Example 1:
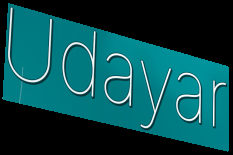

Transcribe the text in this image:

Udayar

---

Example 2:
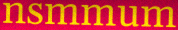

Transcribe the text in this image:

nsmmum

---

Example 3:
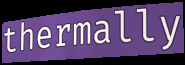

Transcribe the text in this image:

thermally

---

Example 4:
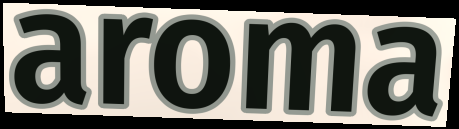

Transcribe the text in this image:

aroma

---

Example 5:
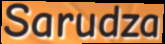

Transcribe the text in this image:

Sarudza